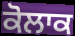
ਕੋਲਾਕ